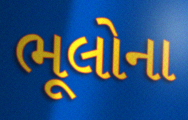
ભૂલોના